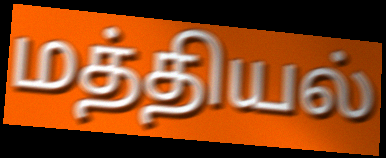
மத்தியல்